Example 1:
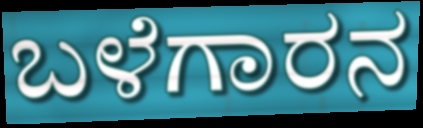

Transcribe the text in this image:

ಬಳೆಗಾರನ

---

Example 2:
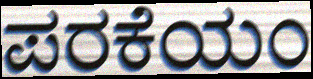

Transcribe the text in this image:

ಪರಕೆಯಂ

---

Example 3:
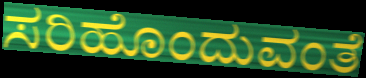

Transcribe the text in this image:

ಸರಿಹೊಂದುವಂತೆ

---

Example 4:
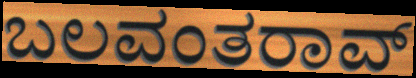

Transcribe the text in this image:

ಬಲವಂತರಾವ್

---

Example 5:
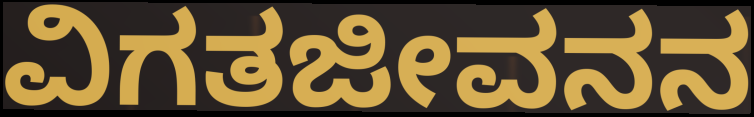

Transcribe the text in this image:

ವಿಗತಜೀವನನ